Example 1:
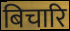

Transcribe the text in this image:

बिचारि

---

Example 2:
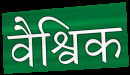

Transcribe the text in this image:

वैश्विक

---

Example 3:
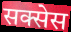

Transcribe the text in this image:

सक्सेस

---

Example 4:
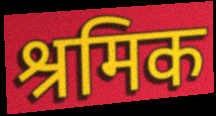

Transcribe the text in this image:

श्रमिक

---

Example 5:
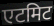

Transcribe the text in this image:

एटमिट